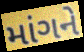
માંગને